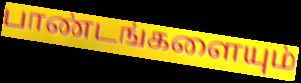
பாண்டங்களையும்